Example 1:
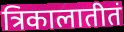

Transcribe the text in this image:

त्रिकालातीतं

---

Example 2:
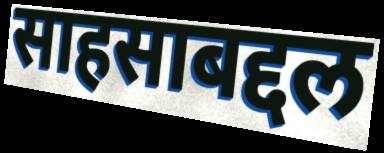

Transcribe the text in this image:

साहसाबद्दल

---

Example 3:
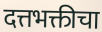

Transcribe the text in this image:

दत्तभक्तीचा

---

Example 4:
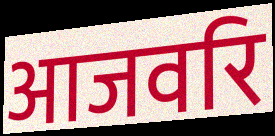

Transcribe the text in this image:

आजवरि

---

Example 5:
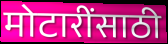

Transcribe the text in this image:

मोटारींसाठी